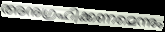
അനുഗ്രഹിക്കണമെന്നും